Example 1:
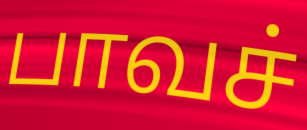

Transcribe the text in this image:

பாவச்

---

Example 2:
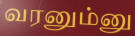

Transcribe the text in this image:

வரனும்னு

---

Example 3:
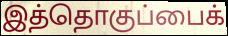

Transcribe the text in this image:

இத்தொகுப்பைக்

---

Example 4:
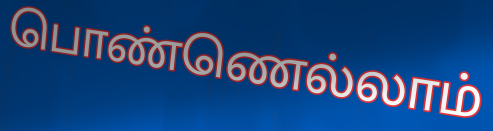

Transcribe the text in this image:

பொண்ணெல்லாம்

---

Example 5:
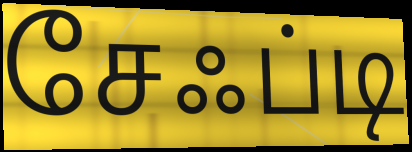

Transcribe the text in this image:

சேஃப்டி